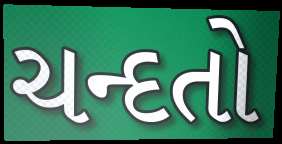
ચન્દતો